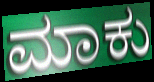
ಮಾಕು